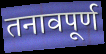
तनावपूर्ण